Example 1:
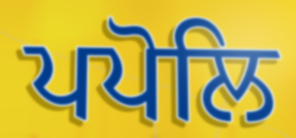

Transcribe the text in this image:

ਪਪੋਲਿ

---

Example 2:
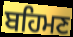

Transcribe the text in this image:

ਬਹਿਮਣ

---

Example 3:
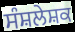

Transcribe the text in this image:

ਸੰਸ਼ਲੇਸ਼ਕ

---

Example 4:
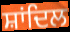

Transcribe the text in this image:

ਸ਼ਾਂਦਿਲ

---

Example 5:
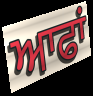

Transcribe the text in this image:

ਆਫਾਂ